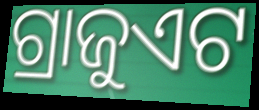
ଗ୍ରାଜୁଏଟ